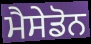
ਮੈਸੇਡੋਨ